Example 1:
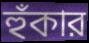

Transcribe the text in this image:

হুঁকার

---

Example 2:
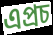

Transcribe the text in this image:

এপ্রচ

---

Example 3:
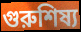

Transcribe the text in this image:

গুরুশিষ্য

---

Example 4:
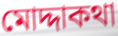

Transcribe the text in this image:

মোদ্দাকথা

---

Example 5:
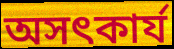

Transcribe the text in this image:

অসৎকার্য